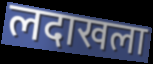
लदाखला